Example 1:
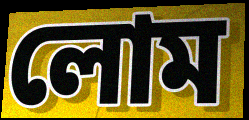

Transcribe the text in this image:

লোম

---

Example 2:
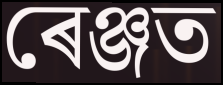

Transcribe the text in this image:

ৰেঞ্জত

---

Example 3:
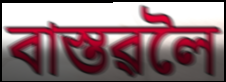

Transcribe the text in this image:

বাস্তৱলৈ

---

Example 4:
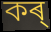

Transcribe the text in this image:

কৰ্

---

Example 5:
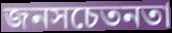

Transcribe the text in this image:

জনসচেতনতা